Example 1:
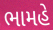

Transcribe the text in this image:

ભામહે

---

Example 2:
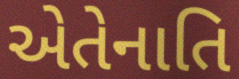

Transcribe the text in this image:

એતેનાતિ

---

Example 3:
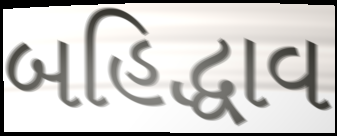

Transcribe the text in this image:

બહિદ્ધાવ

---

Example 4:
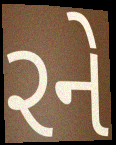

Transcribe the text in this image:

રને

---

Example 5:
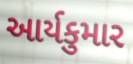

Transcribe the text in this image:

આર્યકુમાર